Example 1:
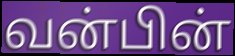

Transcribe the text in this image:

வன்பின்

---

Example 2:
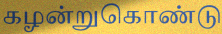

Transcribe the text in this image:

கழன்றுகொண்டு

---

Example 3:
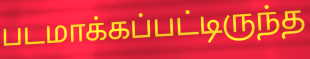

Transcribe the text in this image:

படமாக்கப்பட்டிருந்த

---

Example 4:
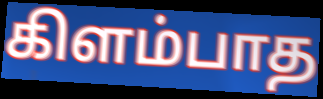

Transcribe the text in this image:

கிளம்பாத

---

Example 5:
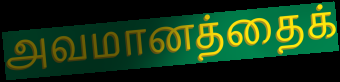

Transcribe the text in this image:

அவமானத்தைக்